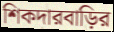
শিকদারবাড়ির